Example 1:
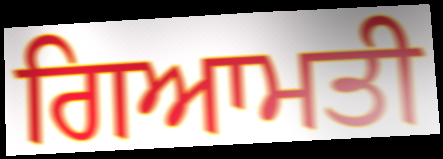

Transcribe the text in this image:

ਗਿਆਮਤੀ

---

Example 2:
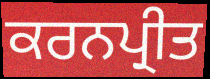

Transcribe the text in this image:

ਕਰਨਪ੍ਰੀਤ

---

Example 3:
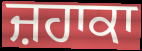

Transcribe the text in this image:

ਜ਼ਹਾਕਾ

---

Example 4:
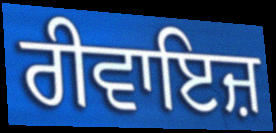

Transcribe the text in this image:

ਰੀਵਾਇਜ਼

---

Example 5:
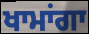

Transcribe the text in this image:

ਖਾਮਾਂਗਾ